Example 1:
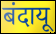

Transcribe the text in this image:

बंदायू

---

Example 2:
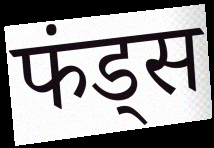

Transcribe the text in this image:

फंड्स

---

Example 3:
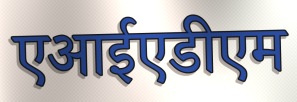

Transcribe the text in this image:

एआईएडीएम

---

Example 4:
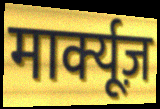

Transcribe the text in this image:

मार्क्यूज़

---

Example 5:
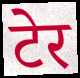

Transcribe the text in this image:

टेर